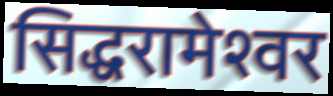
सिद्धरामेश्वर